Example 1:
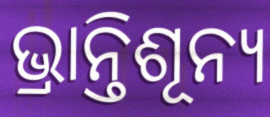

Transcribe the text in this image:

ଭ୍ରାନ୍ତିଶୂନ୍ୟ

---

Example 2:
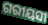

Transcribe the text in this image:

ଗରୀୟସୀ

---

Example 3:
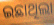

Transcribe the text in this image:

ଇଛାଥିଲା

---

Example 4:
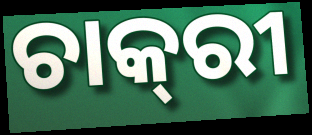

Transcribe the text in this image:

ଚାକ୍‌ରୀ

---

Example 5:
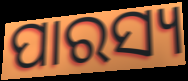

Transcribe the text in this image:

ପାରସ୍ଯ